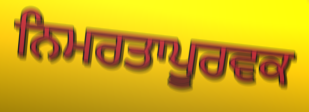
ਨਿਮਰਤਾਪੂਰਵਕ